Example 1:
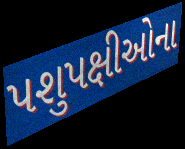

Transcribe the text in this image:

પશુપક્ષીઓના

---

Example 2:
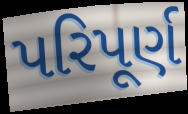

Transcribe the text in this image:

પરિપૂર્ણ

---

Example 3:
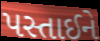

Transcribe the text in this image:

પસ્તાઈને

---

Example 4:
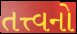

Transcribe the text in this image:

તત્ત્વનો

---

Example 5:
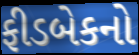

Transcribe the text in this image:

ફીડબેકનો